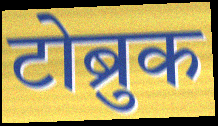
टोब्रुक